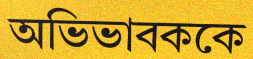
অভিভাবককে